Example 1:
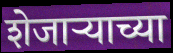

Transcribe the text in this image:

शेजार्‍याच्या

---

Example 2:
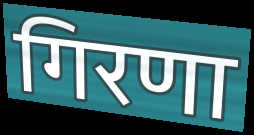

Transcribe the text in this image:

गिरणा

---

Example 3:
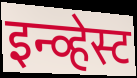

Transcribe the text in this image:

इन्व्हेस्ट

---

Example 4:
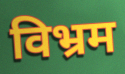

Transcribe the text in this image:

विभ्रम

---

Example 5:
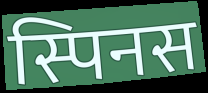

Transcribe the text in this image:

स्पिनस